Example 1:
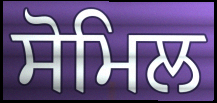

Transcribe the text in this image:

ਸੋਮਿਲ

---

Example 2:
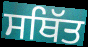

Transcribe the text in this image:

ਸਥਿੱਤ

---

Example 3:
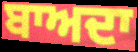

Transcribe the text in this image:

ਬਾਅਦਾ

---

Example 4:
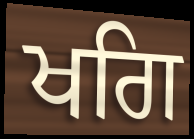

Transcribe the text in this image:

ਖਗਿ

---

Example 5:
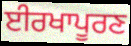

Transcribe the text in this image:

ਈਰਖਾਪੂਰਣ